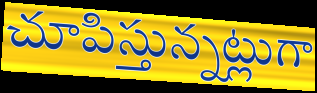
చూపిస్తున్నట్లుగా